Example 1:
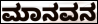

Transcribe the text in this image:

ಮಾನವನ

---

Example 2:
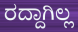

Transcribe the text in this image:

ರದ್ದಾಗಿಲ್ಲ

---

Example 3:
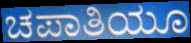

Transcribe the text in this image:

ಚಪಾತಿಯೂ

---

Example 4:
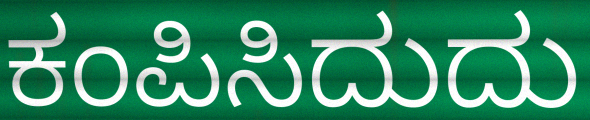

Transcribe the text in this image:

ಕಂಪಿಸಿದುದು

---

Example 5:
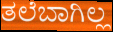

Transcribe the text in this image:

ತಲೆಬಾಗಿಲ್ಲ